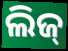
ଲିଜ୍